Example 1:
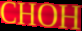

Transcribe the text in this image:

CHOH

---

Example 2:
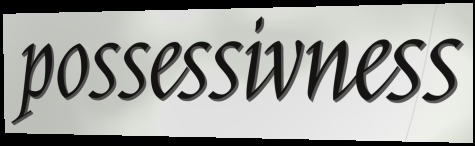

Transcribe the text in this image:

possessivness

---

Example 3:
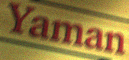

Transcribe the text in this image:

Yaman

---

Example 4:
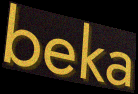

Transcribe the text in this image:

beka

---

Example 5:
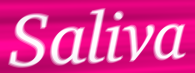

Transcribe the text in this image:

Saliva